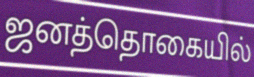
ஜனத்தொகையில்